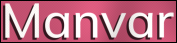
Manvar